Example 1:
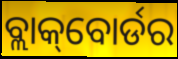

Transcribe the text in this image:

ବ୍ଲାକ୍‌ବୋର୍ଡର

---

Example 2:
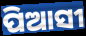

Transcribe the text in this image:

ପିଆସୀ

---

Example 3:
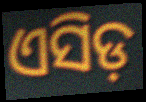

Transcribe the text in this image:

ଏସିଡ଼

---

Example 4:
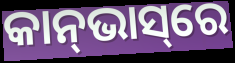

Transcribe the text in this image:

କାନ୍‌ଭାସ୍‌ରେ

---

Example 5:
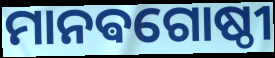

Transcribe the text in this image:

ମାନଵଗୋଷ୍ଠୀ